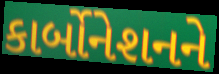
કાર્બોનેશનને